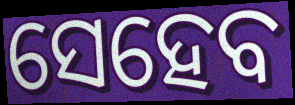
ସେହେବ